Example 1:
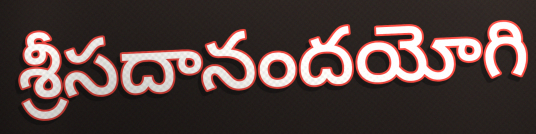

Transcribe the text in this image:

శ్రీసదానందయోగి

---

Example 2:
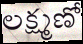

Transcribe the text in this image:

లక్ష్మణో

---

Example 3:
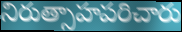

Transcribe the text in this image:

నిరుత్సాహపరిచారు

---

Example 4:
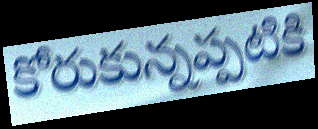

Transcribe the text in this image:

కోరుకున్నప్పటికి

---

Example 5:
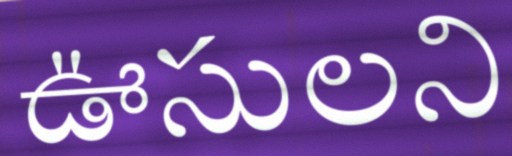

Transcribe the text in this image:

ఊసులని